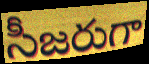
సీజరుగా